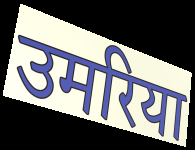
उमरिया